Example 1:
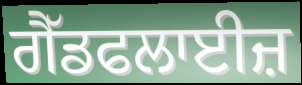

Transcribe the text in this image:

ਗੈੱਡਫਲਾਈਜ਼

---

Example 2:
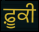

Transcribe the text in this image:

ਫ਼ੂਕੀ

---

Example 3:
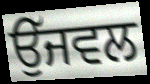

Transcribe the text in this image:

ਉੱਜਵਲ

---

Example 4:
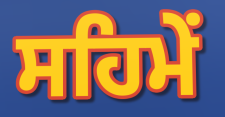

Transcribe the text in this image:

ਸਹਿਮੇਂ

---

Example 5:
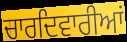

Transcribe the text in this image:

ਚਾਰਦਿਵਾਰੀਆਂ